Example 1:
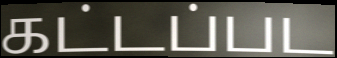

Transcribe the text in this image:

கட்டப்பட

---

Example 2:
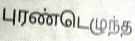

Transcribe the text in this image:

புரண்டெழுந்த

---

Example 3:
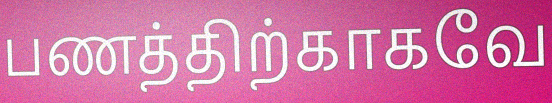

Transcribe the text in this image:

பணத்திற்காகவே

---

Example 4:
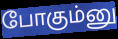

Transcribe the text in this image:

போகும்னு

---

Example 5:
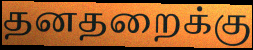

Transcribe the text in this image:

தனதறைக்கு